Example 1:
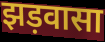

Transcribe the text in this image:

झड़वासा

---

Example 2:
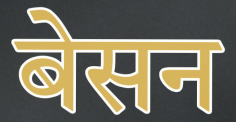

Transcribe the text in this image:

बेसन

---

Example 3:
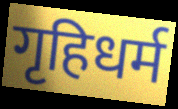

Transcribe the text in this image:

गृहिधर्म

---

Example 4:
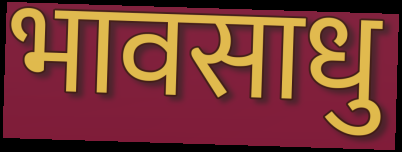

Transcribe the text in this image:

भावसाधु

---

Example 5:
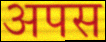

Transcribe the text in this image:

अपस